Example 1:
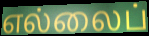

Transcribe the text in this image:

எல்லைப்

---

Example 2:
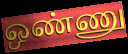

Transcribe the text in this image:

ஒண்ணு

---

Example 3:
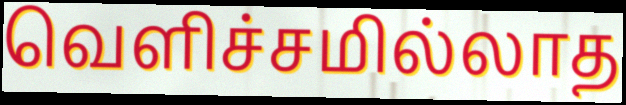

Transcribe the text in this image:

வெளிச்சமில்லாத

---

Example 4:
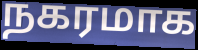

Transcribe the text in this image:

நகரமாக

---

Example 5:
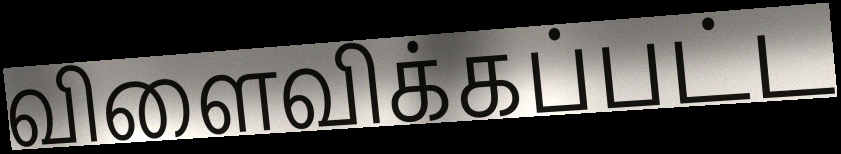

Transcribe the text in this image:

விளைவிக்கப்பட்ட